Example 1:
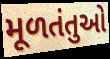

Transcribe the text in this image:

મૂળતંતુઓ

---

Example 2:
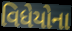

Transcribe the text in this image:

વિધેયોના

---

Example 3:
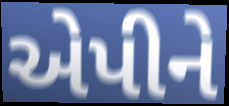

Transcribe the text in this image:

એપીને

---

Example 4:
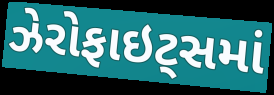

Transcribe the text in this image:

ઝેરોફાઇટ્સમાં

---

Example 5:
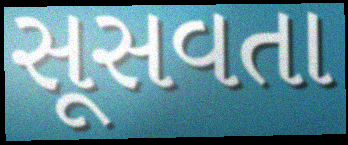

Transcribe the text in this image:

સૂસવતા